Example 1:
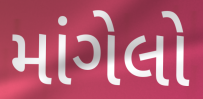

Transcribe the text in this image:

માંગેલો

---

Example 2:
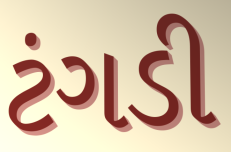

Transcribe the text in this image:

ટંગડી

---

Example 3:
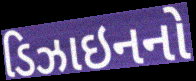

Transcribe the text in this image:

ડિઝાઇનનો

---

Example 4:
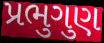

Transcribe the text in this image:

પ્રભુગુણ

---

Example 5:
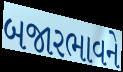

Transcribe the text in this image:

બજારભાવને